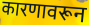
कारणावरून